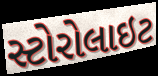
સ્ટોરોલાઇટ